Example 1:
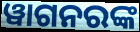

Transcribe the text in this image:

ୱାଗନରଙ୍କ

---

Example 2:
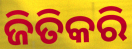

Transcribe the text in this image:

ଜିତିକରି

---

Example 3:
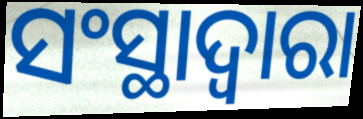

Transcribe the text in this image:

ସଂସ୍ଥାଦ୍ଵାରା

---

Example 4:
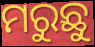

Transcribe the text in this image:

ମରୁଛୁ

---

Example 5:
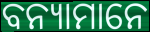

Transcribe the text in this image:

ବନ୍ୟାମାନେ